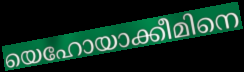
യെഹോയാക്കീമിനെ